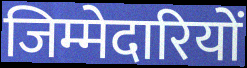
जिम्मेदारियों